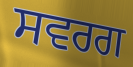
ਸਵਰਗ